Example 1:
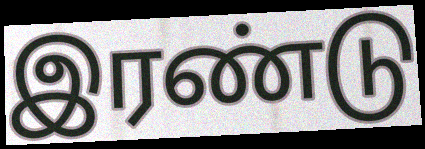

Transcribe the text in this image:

இரண்டு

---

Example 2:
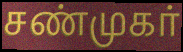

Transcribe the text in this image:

சண்முகர்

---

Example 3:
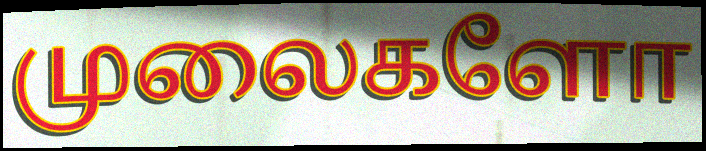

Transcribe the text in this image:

முலைகளோ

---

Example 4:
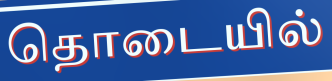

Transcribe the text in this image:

தொடையில்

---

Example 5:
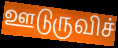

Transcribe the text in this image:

ஊடுருவிச்